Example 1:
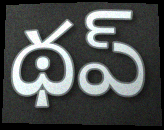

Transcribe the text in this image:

థప్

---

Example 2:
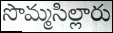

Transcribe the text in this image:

సొమ్మసిల్లారు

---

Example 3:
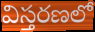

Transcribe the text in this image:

విస్తరణలో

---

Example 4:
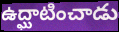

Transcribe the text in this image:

ఉద్ఘాటించాడు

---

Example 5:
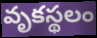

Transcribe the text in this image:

వృకస్థలం